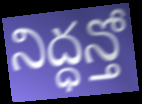
నిద్ధన్తో